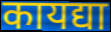
कायद्या